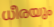
ധീരയും